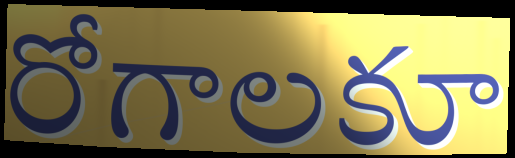
రోగాలకూ